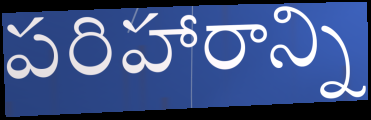
పరిహారాన్ని